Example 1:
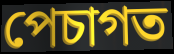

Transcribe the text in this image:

পেচাগত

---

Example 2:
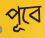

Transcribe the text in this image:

পূবে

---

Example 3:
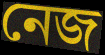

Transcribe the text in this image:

নেজ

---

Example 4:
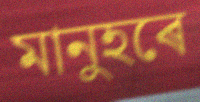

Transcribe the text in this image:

মানুহৰে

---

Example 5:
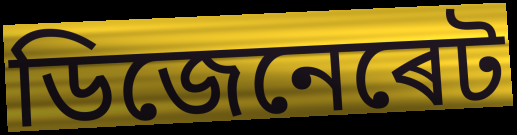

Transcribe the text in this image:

ডিজেনেৰেট